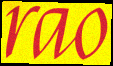
rao